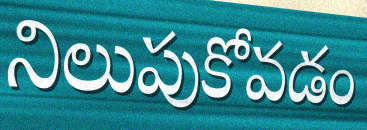
నిలుపుకోవడం